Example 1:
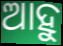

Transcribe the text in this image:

ଆହୁ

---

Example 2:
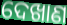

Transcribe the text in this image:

ଦେଖାଣ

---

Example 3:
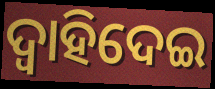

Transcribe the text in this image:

ଦ୍ବାହିଦେଇ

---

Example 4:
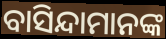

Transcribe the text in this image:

ବାସିନ୍ଦାମାନଙ୍କ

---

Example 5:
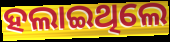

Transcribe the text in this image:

ହଲାଇଥିଲେ